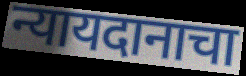
न्यायदानाचा